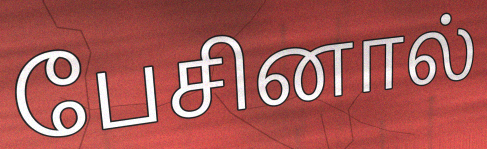
பேசினால்